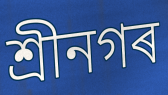
শ্ৰীনগৰ